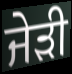
ਜੇੜੀ